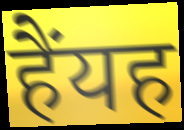
हैंयह